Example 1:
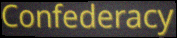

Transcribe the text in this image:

Confederacy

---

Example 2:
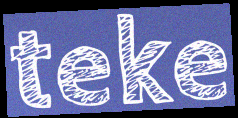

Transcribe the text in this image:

teke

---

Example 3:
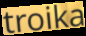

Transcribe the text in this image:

troika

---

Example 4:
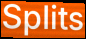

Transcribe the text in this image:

Splits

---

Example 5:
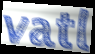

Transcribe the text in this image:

vatl